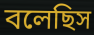
বলেছিস